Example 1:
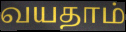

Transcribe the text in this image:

வயதாம்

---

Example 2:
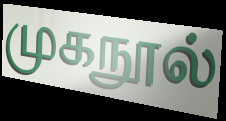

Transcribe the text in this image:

முகநூல்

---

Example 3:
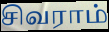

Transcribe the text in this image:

சிவராம்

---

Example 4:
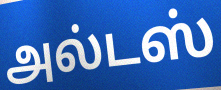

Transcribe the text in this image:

அல்டஸ்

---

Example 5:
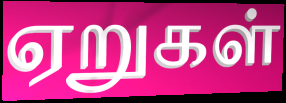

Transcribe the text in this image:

ஏறுகள்